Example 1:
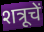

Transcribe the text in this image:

शत्रूचें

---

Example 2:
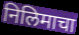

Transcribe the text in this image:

निलिमाचा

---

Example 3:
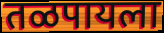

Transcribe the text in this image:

तळपायला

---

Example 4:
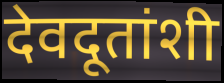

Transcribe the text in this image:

देवदूतांशी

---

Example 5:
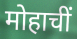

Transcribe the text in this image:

मोहाचीं